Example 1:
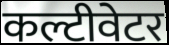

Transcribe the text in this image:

कल्टीवेटर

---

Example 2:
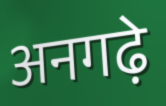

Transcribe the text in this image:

अनगढ़े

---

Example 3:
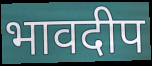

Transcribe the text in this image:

भावदीप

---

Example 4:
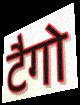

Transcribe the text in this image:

टैगो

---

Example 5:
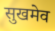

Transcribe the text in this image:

सुखमेव